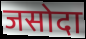
जसोदा